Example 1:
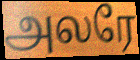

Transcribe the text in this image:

அலரே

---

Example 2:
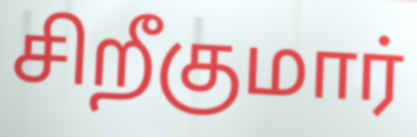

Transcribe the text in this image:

சிறீகுமார்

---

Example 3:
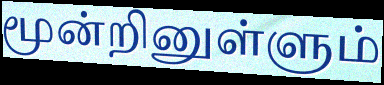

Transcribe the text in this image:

மூன்றினுள்ளும்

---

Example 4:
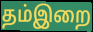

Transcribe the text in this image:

தம்இறை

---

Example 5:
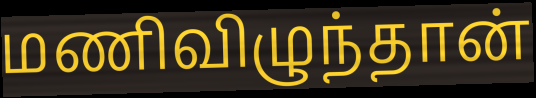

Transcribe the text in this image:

மணிவிழுந்தான்